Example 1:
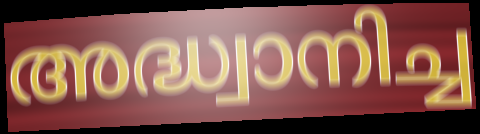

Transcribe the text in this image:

അദ്ധ്വാനിച്ച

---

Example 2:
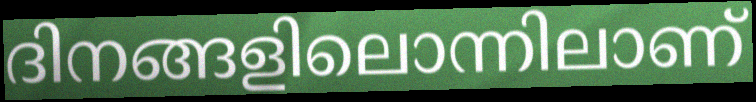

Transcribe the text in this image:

ദിനങ്ങളിലൊന്നിലാണ്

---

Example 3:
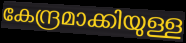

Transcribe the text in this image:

കേന്ദ്രമാക്കിയുള്ള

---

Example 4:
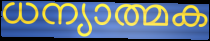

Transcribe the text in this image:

ധന്യാത്മക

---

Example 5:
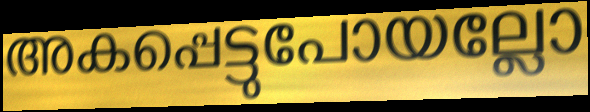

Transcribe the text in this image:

അകപ്പെട്ടുപോയല്ലോ